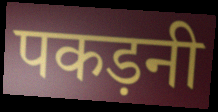
पकड़नी